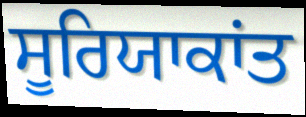
ਸੂਰਿਯਾਕਾਂਤ